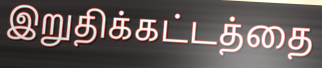
இறுதிக்கட்டத்தை